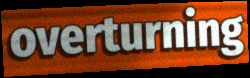
overturning